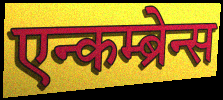
एन्कम्ब्रेन्स